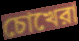
চোখেরা